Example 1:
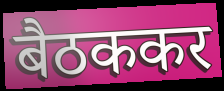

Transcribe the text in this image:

बैठककर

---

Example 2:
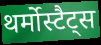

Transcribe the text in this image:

थर्मोस्टैट्स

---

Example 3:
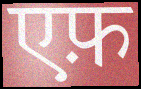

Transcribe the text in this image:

एफ़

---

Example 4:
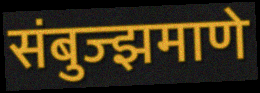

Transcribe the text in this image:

संबुज्झमाणे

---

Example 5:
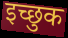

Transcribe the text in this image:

इच्छुक